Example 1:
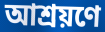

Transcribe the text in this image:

আশ্রয়ণে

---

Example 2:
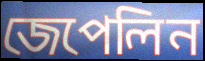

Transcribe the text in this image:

জেপেলিন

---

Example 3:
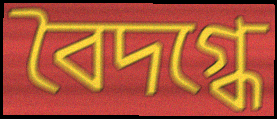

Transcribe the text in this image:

বৈদগ্ধে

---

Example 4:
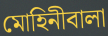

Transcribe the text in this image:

মোহিনীবালা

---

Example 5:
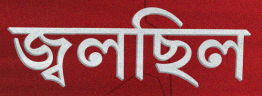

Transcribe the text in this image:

জ্বলছিল